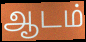
ஆடம்